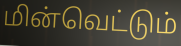
மின்வெட்டும்